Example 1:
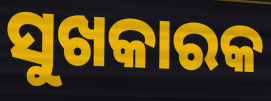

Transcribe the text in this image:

ସୁଖକାରକ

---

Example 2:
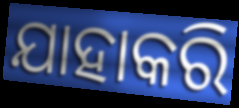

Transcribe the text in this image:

ଯାହାକରି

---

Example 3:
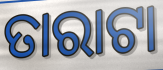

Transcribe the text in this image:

ତାରାଟା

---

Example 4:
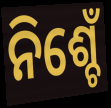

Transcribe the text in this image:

ନିଶ୍ଚେଁ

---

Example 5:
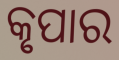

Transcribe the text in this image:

କୃପାର